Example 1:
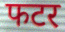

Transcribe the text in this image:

फटर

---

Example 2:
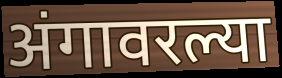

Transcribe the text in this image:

अंगावरल्या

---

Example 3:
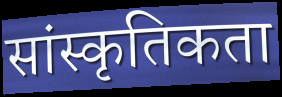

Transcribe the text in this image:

सांस्कृतिकता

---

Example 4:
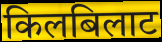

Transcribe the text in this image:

किलबिलाट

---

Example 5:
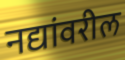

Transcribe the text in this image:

नद्यांवरील